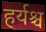
हर्यश्च